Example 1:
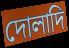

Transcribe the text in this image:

দোলাদি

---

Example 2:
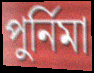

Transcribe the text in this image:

পুর্নিমা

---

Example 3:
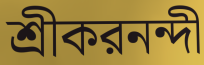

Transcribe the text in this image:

শ্রীকরনন্দী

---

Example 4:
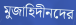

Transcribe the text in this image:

মুজাহিদীনদের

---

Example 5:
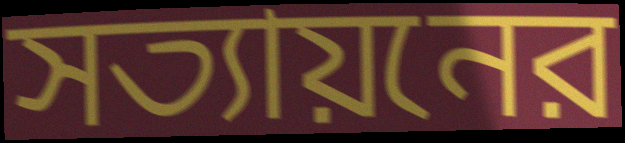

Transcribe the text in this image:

সত্যায়নের